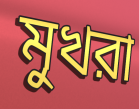
মুখরা